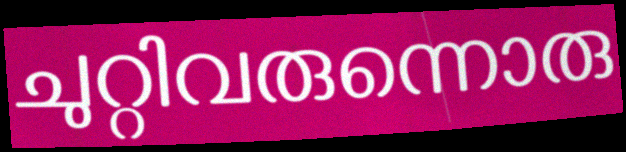
ചുറ്റിവരുന്നൊരു